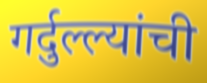
गर्दुल्ल्यांची